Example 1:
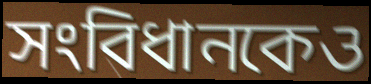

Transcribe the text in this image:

সংবিধানকেও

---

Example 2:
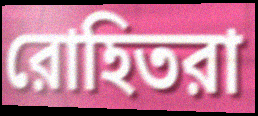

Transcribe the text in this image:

রোহিতরা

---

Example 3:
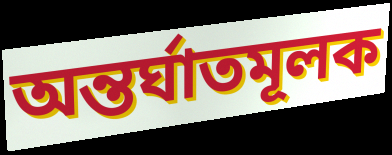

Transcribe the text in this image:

অন্তর্ঘাতমূলক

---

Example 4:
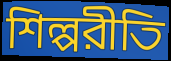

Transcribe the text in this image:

শিল্পরীতি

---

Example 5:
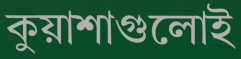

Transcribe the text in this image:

কুয়াশাগুলোই